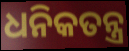
ଧନିକତନ୍ତ୍ର